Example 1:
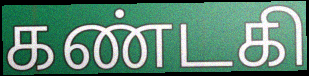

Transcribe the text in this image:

கண்டகி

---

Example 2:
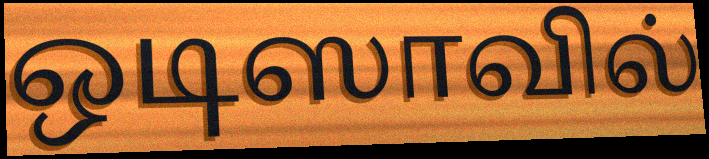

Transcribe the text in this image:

ஒடிஸாவில்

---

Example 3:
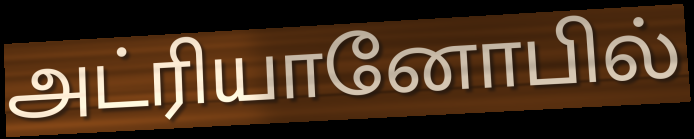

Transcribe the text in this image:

அட்ரியானோபில்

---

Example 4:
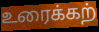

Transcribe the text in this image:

உரைக்கற்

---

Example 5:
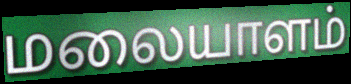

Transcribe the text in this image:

மலையாளம்